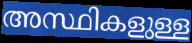
അസ്ഥികളുള്ള